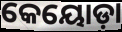
କେୟୋଡ଼ା